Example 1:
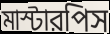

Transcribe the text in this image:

মাস্টারপিস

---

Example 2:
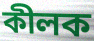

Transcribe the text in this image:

কীলক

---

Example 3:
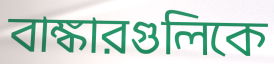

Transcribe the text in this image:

বাঙ্কারগুলিকে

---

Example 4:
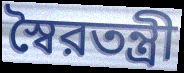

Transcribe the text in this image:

স্বৈরতন্ত্রী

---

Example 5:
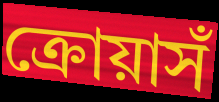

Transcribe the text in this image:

ক্রোয়াসঁ